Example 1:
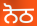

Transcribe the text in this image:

ਨੋਠ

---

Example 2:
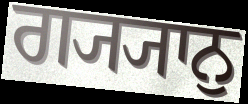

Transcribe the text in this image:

ਗ੍ਯ੍ਯਾਨੁ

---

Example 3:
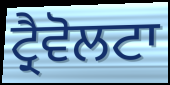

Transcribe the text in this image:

ਟ੍ਰੈਵੋਲਟਾ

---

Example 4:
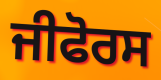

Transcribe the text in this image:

ਜੀਫੋਰਸ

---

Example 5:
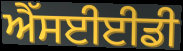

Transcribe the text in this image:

ਐੱਸਈਈਡੀ